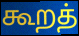
கூறத்